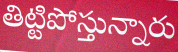
తిట్టిపోస్తున్నారు